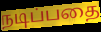
நடிப்பதை